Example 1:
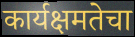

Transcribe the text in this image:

कार्यक्षमतेचा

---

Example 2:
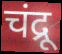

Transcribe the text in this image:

चंद्रू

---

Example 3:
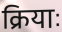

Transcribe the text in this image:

क्रियाः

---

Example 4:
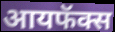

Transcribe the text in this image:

आयफॅक्स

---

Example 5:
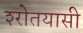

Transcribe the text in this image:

श्रोतयासी